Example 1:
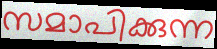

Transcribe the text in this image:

സമാപിക്കുന്ന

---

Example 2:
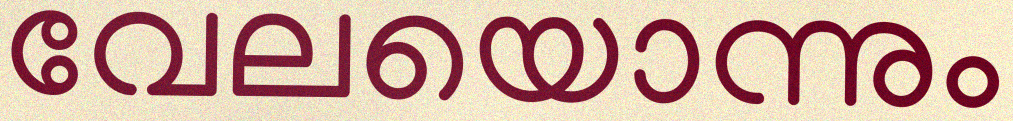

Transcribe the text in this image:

വേലയൊന്നും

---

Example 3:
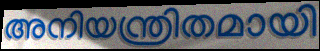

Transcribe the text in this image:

അനിയന്ത്രിതമായി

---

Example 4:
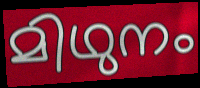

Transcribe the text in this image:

മിഥുനം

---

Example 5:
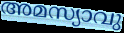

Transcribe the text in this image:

അമസ്യാവു